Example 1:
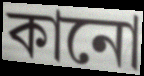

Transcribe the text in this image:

কানো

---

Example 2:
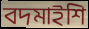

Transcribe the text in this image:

বদমাইশি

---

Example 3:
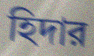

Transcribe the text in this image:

হিদার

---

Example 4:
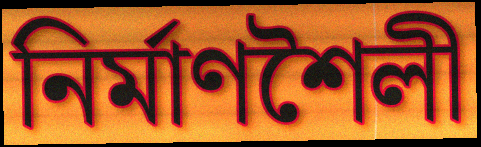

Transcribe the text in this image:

নির্মাণশৈলী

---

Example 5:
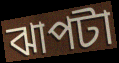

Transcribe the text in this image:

ঝাপটা